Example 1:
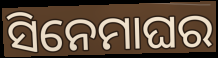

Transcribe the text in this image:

ସିନେମାଘର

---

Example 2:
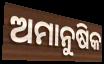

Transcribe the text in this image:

ଅମାନୁଷିକ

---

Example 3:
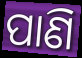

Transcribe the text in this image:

ପାଣି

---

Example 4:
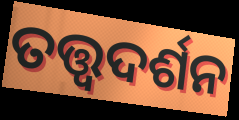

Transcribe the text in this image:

ତତ୍ତ୍ଵଦର୍ଶନ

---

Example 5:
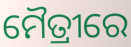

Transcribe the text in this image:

ମୈତ୍ରୀରେ